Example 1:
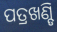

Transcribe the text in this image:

ପତ୍ରଖଣ୍ଡି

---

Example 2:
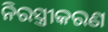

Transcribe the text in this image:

ନିରସ୍ତ୍ରୀକରଣ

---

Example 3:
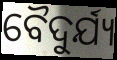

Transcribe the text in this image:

ବୈଦୁର୍ଯ୍ୟ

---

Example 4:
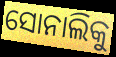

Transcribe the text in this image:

ସୋନାଲିକୁ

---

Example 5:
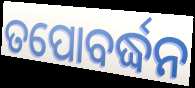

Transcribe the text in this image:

ତପୋବର୍ଦ୍ଧନ